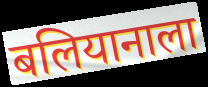
बलियानाला